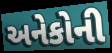
અનેકોની